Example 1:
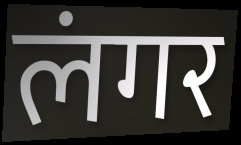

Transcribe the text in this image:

लंगर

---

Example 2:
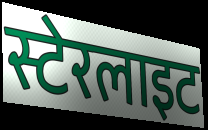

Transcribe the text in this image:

स्टेरलाइट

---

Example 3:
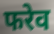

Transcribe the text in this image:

फरेव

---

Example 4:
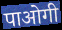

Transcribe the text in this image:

पाओगी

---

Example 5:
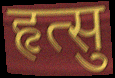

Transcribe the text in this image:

हृत्सु